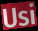
Usi